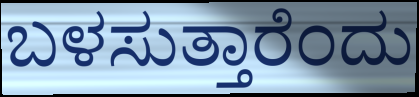
ಬಳಸುತ್ತಾರೆಂದು